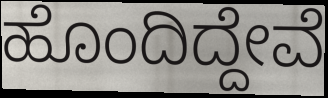
ಹೊಂದಿದ್ದೇವೆ